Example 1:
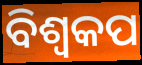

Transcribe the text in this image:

ବିଶ୍ବକପ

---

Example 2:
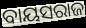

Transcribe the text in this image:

ବାୟସରାଜ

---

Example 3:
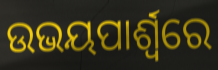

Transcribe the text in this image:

ଉଭୟପାର୍ଶ୍ବରେ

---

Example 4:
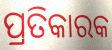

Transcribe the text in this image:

ପ୍ରତିକାରକ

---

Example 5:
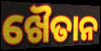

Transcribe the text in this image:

ଖୈତାନ